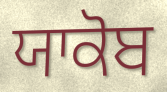
ਯਾਕੋਬ